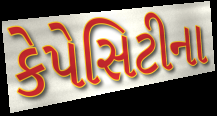
કેપેસિટીના